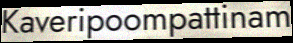
Kaveripoompattinam